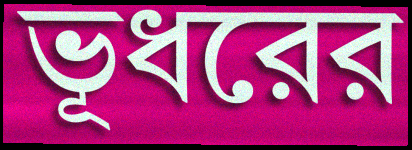
ভূধরের